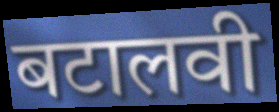
बटालवी